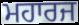
ਮਹਾਰਜ